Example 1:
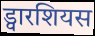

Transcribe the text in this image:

ड्वारशियस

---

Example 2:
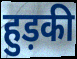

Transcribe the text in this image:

हुड़की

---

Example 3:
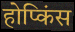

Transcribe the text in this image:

होप्किंस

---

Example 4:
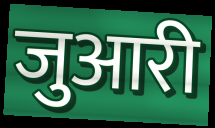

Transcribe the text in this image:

जुआरी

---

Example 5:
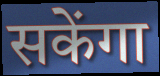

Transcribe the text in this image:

सकेंगा